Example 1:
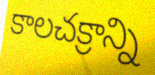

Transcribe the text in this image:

కాలచక్రాన్ని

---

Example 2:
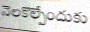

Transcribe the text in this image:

నెలకొల్పేందుకు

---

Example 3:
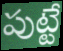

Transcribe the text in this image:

పుట్టే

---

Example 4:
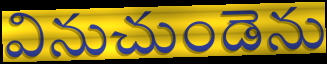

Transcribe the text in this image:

వినుచుండెను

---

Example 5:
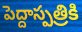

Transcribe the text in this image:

పెద్దాస్పత్రికి